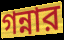
গন্নার